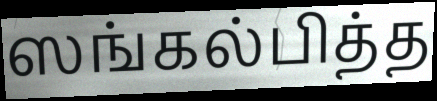
ஸங்கல்பித்த